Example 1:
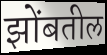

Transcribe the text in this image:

झोंबतील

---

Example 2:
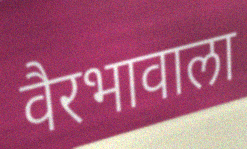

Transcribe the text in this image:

वैरभावाला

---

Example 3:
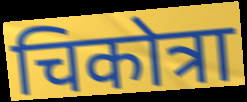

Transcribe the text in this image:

चिकोत्रा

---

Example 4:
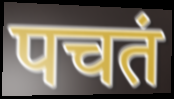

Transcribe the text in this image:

पचतं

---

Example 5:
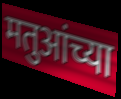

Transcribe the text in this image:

मतुआंच्या